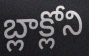
బ్లాక్లోని